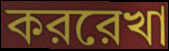
কররেখা